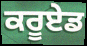
ਕਰੂਏਡ